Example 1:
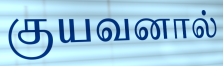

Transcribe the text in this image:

குயவனால்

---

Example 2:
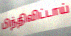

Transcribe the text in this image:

பிந்திவிட்டாய்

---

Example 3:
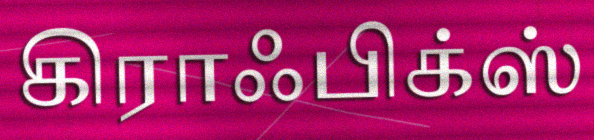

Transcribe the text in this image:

கிராஃபிக்ஸ்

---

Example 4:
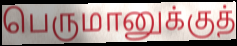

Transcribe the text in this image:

பெருமானுக்குத்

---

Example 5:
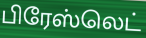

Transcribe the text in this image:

பிரேஸ்லெட்